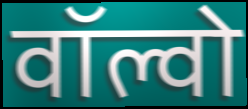
वॉल्वो